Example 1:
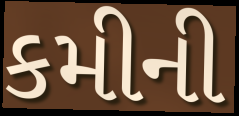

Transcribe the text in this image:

કમીની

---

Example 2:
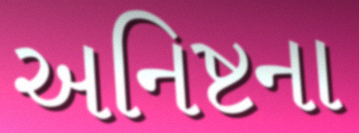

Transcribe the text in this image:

અનિષ્ટના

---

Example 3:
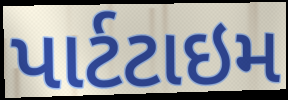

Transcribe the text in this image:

પાર્ટટાઇમ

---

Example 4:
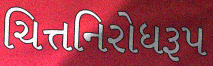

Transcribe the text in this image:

ચિત્તનિરોધરૂપ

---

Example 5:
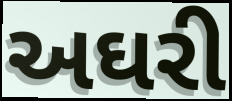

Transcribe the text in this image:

અઘરી